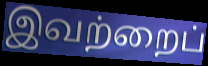
இவற்றைப்